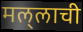
मल्लाची